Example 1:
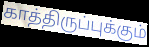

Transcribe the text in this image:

காத்திருப்புக்கும்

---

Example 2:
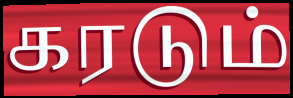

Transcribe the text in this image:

கரடும்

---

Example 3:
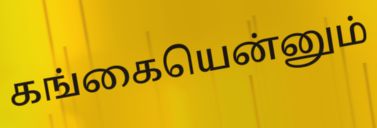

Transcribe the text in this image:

கங்கையென்னும்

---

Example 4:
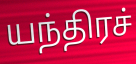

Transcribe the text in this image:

யந்திரச்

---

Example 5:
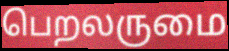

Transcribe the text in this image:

பெறலருமை